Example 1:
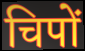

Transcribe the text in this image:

चिपों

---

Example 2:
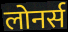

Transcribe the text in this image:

लोनर्स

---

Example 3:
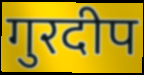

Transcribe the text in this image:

गुरदीप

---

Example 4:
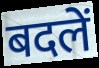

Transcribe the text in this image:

बदलें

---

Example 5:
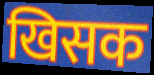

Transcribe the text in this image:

खिसक